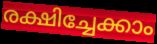
രക്ഷിച്ചേക്കാം